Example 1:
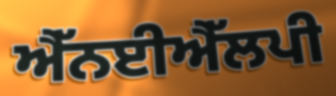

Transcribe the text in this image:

ਐੱਨਈਐੱਲਪੀ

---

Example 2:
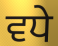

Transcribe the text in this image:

ਵਧੇ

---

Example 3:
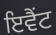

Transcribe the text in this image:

ਇਵੈਂਟ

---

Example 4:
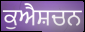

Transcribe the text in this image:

ਕੁਐਸ਼ਚਨ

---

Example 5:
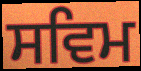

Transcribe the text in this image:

ਸਵਿਮ